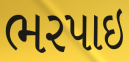
ભરપાઇ